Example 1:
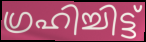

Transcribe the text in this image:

ഗ്രഹിച്ചിട്ട്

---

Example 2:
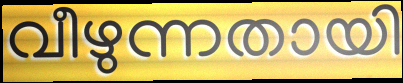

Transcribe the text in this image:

വീഴുന്നതായി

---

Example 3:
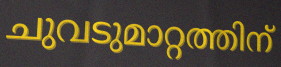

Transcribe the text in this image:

ചുവടുമാറ്റത്തിന്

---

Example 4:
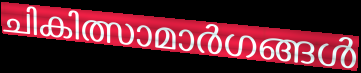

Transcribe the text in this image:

ചികിത്സാമാർഗങ്ങൾ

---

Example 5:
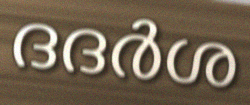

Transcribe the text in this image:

ദദർശ